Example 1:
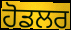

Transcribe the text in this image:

ਹੋਡਲਰ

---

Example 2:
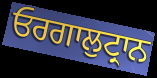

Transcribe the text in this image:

ਓਰਗਾਲੁਟ੍ਰਾਨ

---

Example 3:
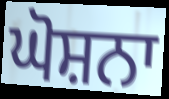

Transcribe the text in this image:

ਘੋਸ਼ਨਾ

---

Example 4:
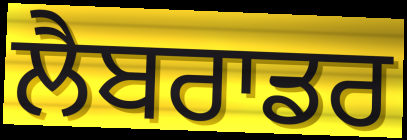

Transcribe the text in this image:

ਲੈਬਰਾਡਰ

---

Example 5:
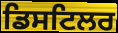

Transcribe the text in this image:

ਡਿਸਟਿਲਰ